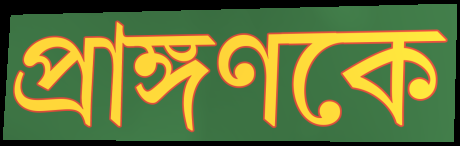
প্রাঙ্গণকে